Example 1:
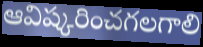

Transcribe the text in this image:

ఆవిష్కరించగలగాలి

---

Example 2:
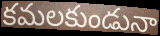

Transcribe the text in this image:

కమలకుండునా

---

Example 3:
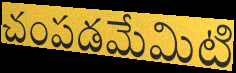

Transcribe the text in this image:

చంపడమేమిటి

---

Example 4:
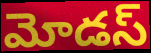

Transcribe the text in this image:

మోడస్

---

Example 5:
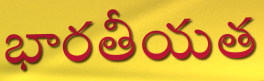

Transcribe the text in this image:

భారతీయత